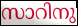
സാറിനു